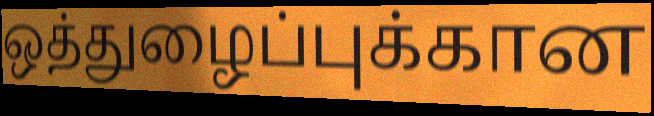
ஒத்துழைப்புக்கான